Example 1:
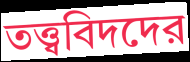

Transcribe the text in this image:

তত্ত্ববিদদের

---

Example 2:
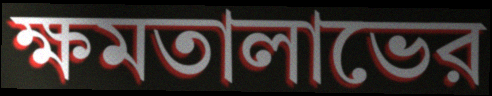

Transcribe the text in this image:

ক্ষমতালাভের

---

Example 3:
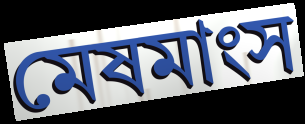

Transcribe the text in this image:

মেষমাংস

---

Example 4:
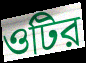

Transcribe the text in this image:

ওটির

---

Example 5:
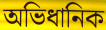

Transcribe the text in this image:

অভিধানিক